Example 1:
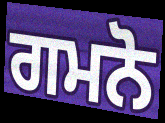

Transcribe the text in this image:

ਗਮਨੋ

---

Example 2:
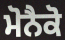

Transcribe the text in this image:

ਮੋਨੈਕੋ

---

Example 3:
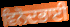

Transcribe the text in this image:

ਵਿਨੋਦਭਾਈ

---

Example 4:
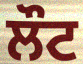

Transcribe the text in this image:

ਲੌਟ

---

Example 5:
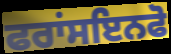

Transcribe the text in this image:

ਫਰਾਂਸਇਨਫੋ